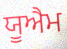
ਯੂਐਮ